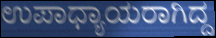
ಉಪಾಧ್ಯಾಯರಾಗಿದ್ದ